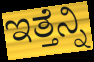
ಇತ್ತೆನ್ನಿ